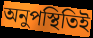
অনুপস্থিতিই